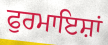
ਫੁਰਮਾਇਸ਼ਾਂ